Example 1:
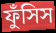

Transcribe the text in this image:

ফুঁসিস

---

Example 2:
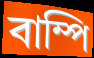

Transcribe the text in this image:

বাম্পি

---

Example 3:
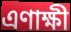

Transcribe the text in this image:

এণাক্ষী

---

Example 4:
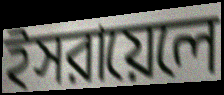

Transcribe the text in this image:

ইসরায়েলে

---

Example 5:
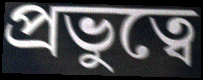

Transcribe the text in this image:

প্রভুত্বে